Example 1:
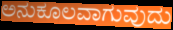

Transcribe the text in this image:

ಅನುಕೂಲವಾಗುವುದು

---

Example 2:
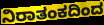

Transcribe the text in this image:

ನಿರಾತಂಕದಿಂದ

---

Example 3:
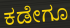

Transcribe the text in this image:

ಕಡೇಗೂ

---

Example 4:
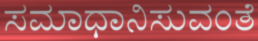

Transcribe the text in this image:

ಸಮಾಧಾನಿಸುವಂತೆ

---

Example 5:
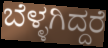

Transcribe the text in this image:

ಬೆಳ್ಳಗಿದ್ದರೆ